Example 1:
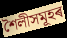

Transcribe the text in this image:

শৈলীসমূহৰ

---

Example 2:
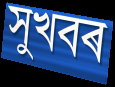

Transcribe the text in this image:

সুখবৰ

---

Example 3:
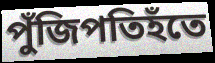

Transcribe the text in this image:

পুঁজিপতিহঁতে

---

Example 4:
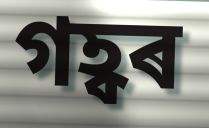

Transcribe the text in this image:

গহ্বৰ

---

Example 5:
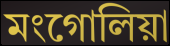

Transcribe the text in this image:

মংগোলিয়া